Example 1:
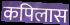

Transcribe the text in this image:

कपिलास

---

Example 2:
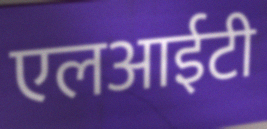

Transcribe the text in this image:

एलआईटी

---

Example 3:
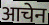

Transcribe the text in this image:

आचेन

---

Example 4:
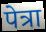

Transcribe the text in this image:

पेत्रा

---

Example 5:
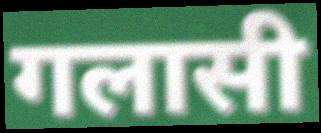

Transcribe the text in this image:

गलासी